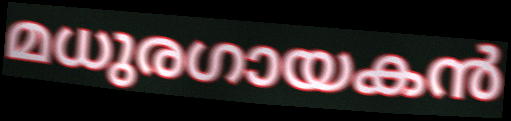
മധുരഗായകൻ